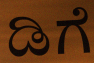
ಡಿಗೆ